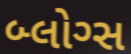
બ્લોગ્સ